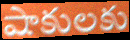
షాకులకు